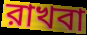
রাখবা